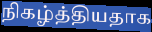
நிகழ்த்தியதாக